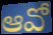
ఆవో